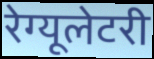
रेग्यूलेटरी